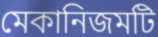
মেকানিজমটি